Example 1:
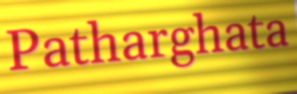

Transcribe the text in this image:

Patharghata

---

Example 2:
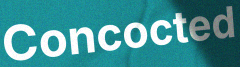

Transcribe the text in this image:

Concocted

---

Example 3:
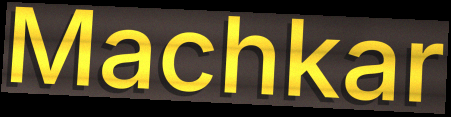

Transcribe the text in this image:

Machkar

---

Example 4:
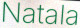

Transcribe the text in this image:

Natala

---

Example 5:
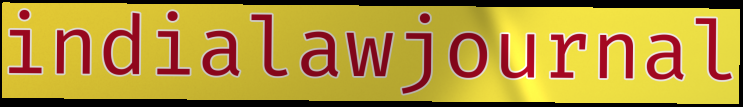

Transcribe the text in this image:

indialawjournal